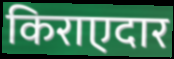
किराएदार